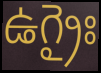
ఉగ్రైః